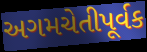
અગમચેતીપૂર્વક